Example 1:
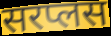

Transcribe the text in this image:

सरप्लस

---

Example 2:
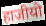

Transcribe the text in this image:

हाजीयो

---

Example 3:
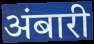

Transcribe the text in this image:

अंबारी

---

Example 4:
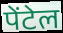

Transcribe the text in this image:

पेंटेल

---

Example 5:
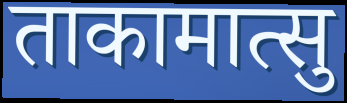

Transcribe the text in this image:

ताकामात्सु